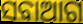
ସବାଆଗ